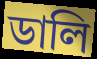
ডালি